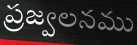
ప్రజ్వలనము